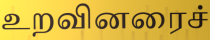
உறவினரைச்